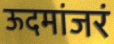
ऊदमांजरं